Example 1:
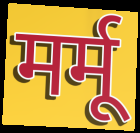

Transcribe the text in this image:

मर्मू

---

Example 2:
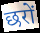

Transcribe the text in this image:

छरों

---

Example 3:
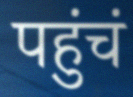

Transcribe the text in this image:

पहुंचं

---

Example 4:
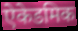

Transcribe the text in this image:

ऐकेडमिक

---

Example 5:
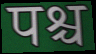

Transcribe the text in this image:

पश्च